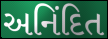
અનિંદિત